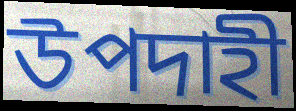
উপদাহী